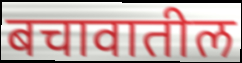
बचावातील